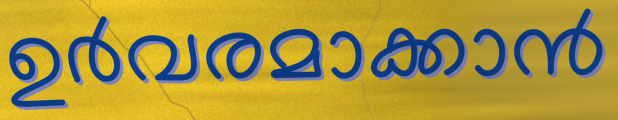
ഉർവരമാക്കാൻ